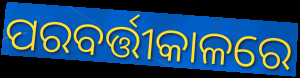
ପରବର୍ତ୍ତୀକାଳରେ